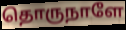
தொருநாளே